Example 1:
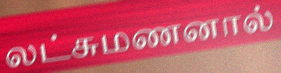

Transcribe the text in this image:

லட்சுமணனால்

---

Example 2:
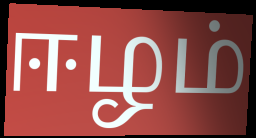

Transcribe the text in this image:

ஈழம்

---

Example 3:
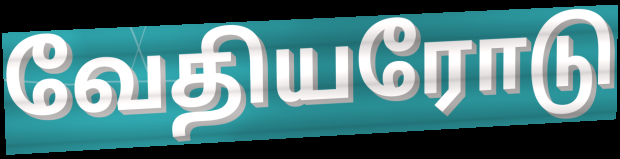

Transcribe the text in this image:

வேதியரோடு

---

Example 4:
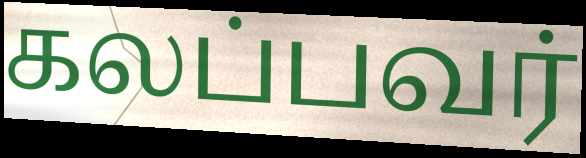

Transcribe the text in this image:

கலப்பவர்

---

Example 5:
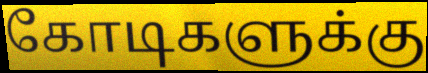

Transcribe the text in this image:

கோடிகளுக்கு